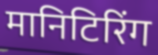
मानिटिरिंग